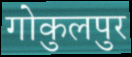
गोकुलपुर